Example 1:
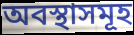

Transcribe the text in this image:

অবস্থাসমূহ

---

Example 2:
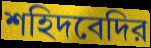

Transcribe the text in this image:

শহিদবেদির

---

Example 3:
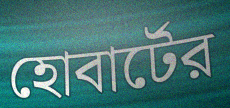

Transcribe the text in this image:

হোবার্টের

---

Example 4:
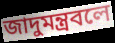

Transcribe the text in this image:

জাদুমন্ত্রবলে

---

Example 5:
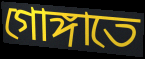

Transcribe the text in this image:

গোঙ্গাতে